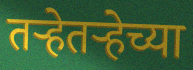
तऱ्हेतऱ्हेच्या